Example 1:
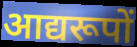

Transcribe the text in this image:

आद्यरूपों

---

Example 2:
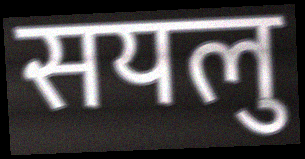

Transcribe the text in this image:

सयलु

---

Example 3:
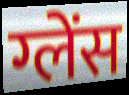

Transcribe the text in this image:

ग्लेंस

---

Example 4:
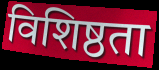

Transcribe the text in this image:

विशिष्ठता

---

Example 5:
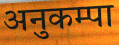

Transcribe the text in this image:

अनुकम्पा